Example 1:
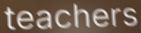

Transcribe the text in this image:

teachers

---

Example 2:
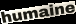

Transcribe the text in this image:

humaine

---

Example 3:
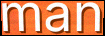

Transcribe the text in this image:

man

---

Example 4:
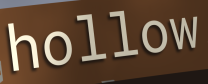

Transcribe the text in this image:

hollow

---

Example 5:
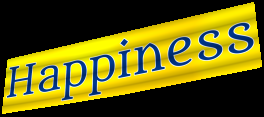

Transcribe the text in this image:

Happiness